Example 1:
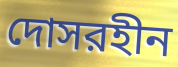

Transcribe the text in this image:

দোসরহীন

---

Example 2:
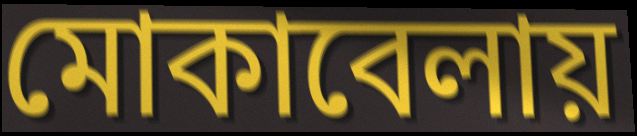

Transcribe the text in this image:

মোকাবেলায়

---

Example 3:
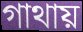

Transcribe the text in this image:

গাথায়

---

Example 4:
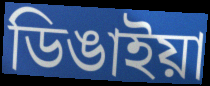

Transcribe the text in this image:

ডিঙাইয়া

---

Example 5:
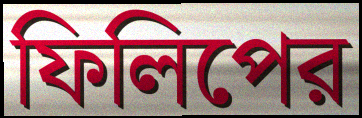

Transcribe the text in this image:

ফিলিপের